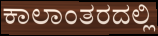
ಕಾಲಾಂತರದಲ್ಲಿ